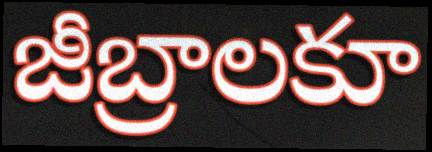
జీబ్రాలకూ